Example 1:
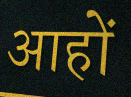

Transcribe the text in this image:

आहों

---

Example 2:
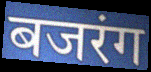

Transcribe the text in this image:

बजरंग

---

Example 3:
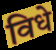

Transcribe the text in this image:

विधे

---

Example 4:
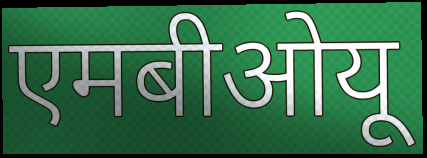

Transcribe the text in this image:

एमबीओयू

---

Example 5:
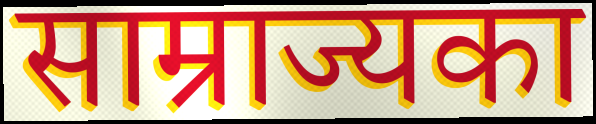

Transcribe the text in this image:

साम्राज्यका